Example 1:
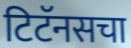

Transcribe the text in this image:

टिटॅनसचा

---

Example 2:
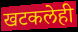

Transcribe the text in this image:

खटकलेही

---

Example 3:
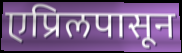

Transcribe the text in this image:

एप्रिलपासून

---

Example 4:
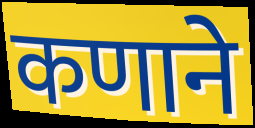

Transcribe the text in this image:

कणाने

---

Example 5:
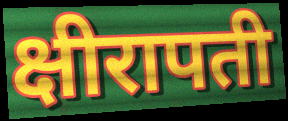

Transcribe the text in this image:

क्षीरापती